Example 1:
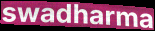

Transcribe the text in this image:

swadharma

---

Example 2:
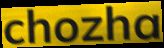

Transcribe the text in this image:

chozha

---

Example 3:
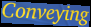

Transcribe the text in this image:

Conveying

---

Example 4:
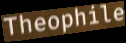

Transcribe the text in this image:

Theophile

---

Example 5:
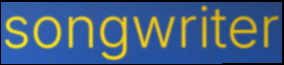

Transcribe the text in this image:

songwriter